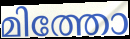
മിത്തോ